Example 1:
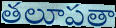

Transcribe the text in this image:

తలూపతా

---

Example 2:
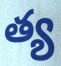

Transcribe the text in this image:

త్య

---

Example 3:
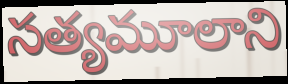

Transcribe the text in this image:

సత్యమూలాని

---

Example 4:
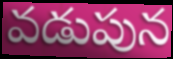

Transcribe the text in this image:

వడుపున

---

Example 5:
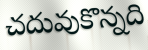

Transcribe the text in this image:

చదువుకొన్నది